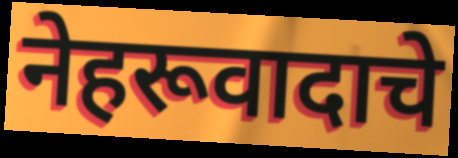
नेहरूवादाचे